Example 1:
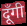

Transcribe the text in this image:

दूँगी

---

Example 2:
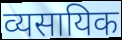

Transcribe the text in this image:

व्यसायिक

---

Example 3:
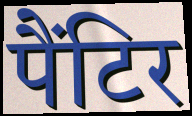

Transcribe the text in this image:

पैंटिर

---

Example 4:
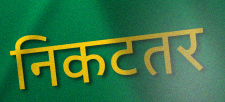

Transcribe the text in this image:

निकटतर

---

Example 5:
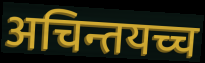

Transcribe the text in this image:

अचिन्तयच्च